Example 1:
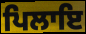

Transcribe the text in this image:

ਪਿਲਾਇ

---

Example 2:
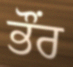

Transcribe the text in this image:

ਭੌਂਰ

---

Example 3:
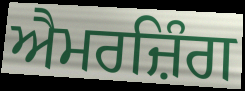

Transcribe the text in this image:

ਐਮਰਜ਼ਿੰਗ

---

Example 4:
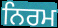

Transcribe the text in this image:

ਨਿਰਮ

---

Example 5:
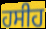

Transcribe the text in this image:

ਹਸੀਹ